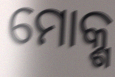
ମୋକ୍ଶ